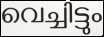
വെച്ചിട്ടും